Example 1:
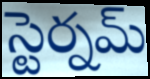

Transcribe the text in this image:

స్టెర్నమ్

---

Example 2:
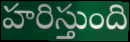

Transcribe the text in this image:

హరిస్తుంది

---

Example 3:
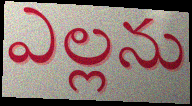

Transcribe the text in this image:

ఎల్లను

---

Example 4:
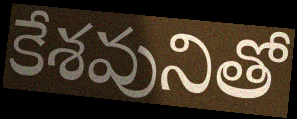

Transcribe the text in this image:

కేశవునితో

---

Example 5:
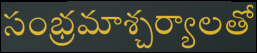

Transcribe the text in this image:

సంభ్రమాశ్చర్యాలతో